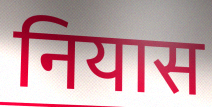
नियास